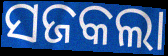
ସଜକଲା